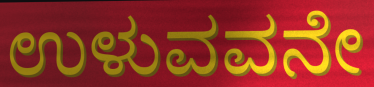
ಉಳುವವನೇ